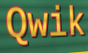
Qwik